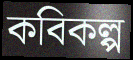
কবিকল্প